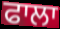
ਫਾਲਾ